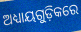
ଅଧ୍ୟାୟଗୁଡ଼ିକରେ